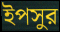
ইপসুর